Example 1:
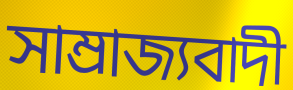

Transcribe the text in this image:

সাম্ৰাজ্যবাদী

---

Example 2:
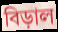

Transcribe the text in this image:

বিড়াল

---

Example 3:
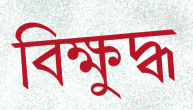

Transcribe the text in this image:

বিক্ষুদ্ধ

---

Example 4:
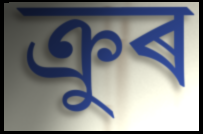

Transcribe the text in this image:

ক্ৰুৰ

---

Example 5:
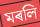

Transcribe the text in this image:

মৰলি